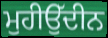
ਮੁਹੀਉੱਦੀਨ